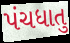
પંચધાતુ